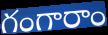
గంగారాం